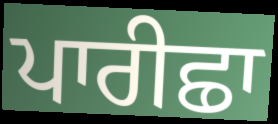
ਪਾਰੀਛਾ